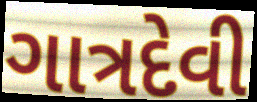
ગાત્રદેવી